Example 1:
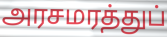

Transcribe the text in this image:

அரசமரத்துப்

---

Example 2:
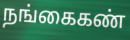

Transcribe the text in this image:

நங்கைகண்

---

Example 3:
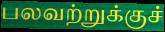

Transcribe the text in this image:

பலவற்றுக்குச்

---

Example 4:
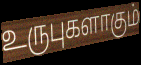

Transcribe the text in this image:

உருபுகளாகும்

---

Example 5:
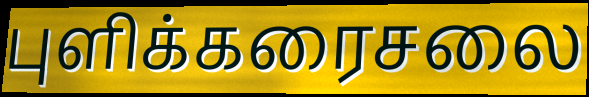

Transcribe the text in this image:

புளிக்கரைசலை